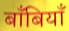
बाँबियाँ